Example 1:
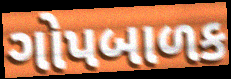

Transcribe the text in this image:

ગોપબાળક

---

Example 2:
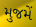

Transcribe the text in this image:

મુજમેં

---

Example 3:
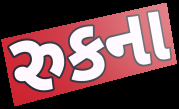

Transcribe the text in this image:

રુકના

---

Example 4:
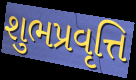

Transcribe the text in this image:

શુભપ્રવૃત્તિ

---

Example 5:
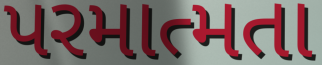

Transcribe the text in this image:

પરમાત્મતા